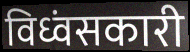
विध्वंसकारी